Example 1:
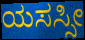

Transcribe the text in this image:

ಯಸಸ್ಸೀ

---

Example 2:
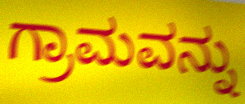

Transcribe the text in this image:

ಗ್ರಾಮವನ್ನು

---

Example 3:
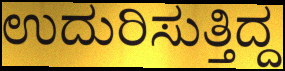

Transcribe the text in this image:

ಉದುರಿಸುತ್ತಿದ್ದ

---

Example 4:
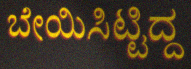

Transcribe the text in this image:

ಬೇಯಿಸಿಟ್ಟಿದ್ದ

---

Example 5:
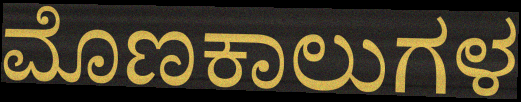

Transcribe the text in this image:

ಮೊಣಕಾಲುಗಳ